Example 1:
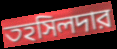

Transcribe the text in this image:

তহসিলদার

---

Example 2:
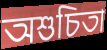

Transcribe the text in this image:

অশুচিতা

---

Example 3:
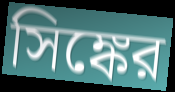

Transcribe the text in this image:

সিঙ্কের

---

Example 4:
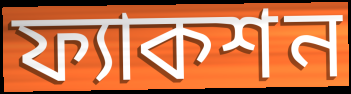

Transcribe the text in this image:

ফ্যাকশন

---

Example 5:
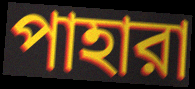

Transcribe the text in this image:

পাহারা